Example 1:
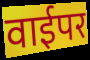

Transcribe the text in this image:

वाईपर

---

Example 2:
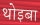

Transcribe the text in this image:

थोइबा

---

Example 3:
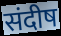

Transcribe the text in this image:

संदीष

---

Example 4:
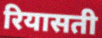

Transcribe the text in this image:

रियासती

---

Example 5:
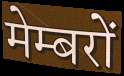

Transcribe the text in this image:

मेम्बरों